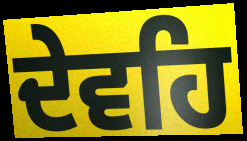
ਦੇਵਹਿ